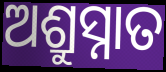
ଅଶ୍ରୁସ୍ନାତ